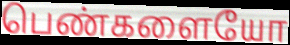
பெண்களையோ